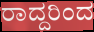
ರಾದ್ದರಿಂದ